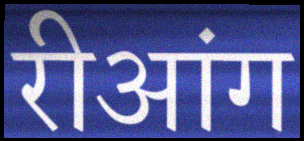
रीआंग